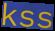
kss